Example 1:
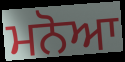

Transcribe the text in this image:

ਮਨੋਆ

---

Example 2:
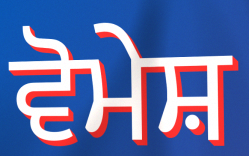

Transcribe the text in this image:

ਵੋਮੇਸ਼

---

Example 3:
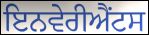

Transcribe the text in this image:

ਇਨਵੇਰੀਐਂਟਸ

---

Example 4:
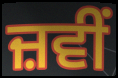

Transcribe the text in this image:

ਜ਼ਵੀਂ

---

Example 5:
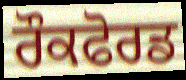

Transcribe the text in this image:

ਰੌਕਫੋਰਡ